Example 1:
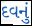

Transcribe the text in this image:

દવનું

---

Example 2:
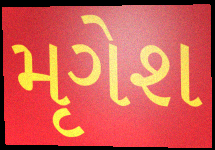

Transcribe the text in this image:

મૃગેશ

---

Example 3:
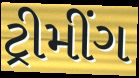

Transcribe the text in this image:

ટ્રીમીંગ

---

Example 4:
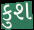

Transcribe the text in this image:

કુશ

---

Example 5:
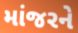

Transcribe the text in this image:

માંજરને